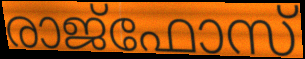
രാജ്ഫോസ്